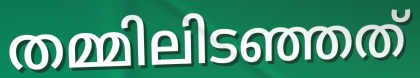
തമ്മിലിടഞ്ഞത്